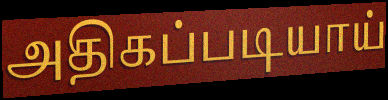
அதிகப்படியாய்